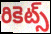
రికెట్స్